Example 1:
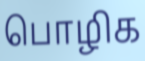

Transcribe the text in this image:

பொழிக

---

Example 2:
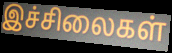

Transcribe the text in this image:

இச்சிலைகள்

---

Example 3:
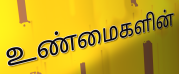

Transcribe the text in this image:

உண்மைகளின்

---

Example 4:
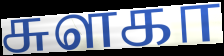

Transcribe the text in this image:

சுளகா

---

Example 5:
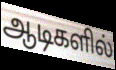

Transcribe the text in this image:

ஆடிகளில்